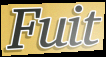
Fuit